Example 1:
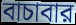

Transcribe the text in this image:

বাচাবার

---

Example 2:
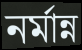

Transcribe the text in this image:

নর্মান্ন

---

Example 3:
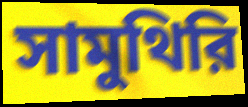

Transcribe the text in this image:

সামুথিরি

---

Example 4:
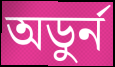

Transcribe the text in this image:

অডুর্ন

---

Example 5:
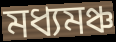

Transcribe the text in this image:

মধ্যমঞ্চ